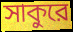
সাকুরে